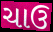
ચાઉ